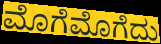
ಮೊಗೆಮೊಗೆದು